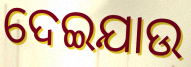
ଦେଇଯାଉ